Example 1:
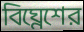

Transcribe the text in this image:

বিঘ্নেশের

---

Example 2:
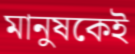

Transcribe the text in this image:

মানুষকেই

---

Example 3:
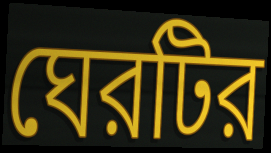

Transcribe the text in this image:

ঘেরটির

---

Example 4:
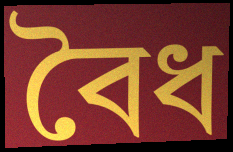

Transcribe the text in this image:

বৈধ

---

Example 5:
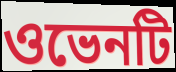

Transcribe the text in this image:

ওভেনটি